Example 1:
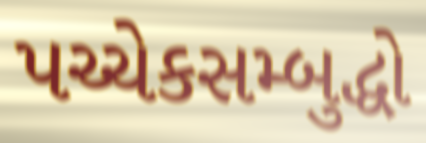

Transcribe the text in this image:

પચ્ચેકસમ્બુદ્ધો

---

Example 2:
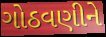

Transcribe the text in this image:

ગોઠવણીને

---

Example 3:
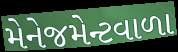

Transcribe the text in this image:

મેનેજમેન્ટવાળા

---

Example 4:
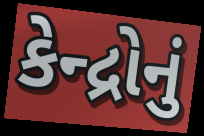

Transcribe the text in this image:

કેન્દ્રોનું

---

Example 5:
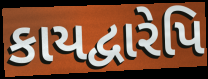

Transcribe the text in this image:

કાયદ્વારેપિ